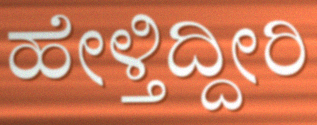
ಹೇಳ್ತಿದ್ದೀರಿ